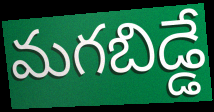
మగబిడ్డే